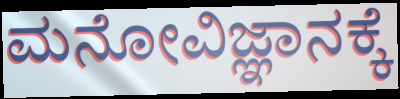
ಮನೋವಿಜ್ಞಾನಕ್ಕೆ